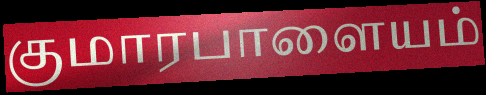
குமாரபாளையம்